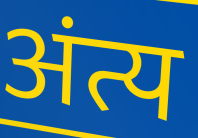
अंत्य